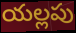
యల్లపు